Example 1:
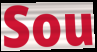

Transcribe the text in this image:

Sou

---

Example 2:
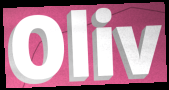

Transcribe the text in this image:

Oliv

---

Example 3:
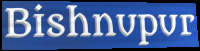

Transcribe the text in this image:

Bishnupur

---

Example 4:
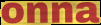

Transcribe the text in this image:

onna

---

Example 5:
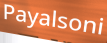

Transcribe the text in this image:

Payalsoni